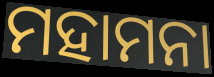
ମହାମନା